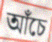
আঁচে